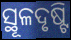
ସ୍ଥୂଳଦୃଷ୍ଟି